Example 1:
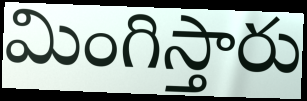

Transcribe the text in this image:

మింగిస్తారు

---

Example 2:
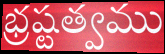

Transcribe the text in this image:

భ్రష్టత్వము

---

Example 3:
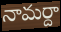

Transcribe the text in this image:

నామర్దా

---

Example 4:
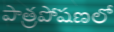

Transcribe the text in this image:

పాత్రపోషణలో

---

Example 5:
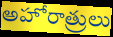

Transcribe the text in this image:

అహోరాత్రులు